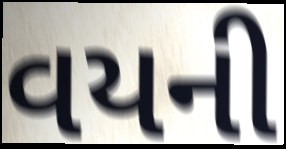
વયની